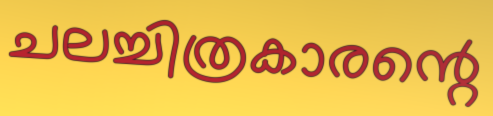
ചലച്ചിത്രകാരന്റെ